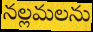
నల్లమలను